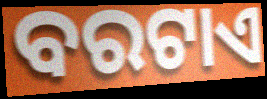
ବରଟାଏ